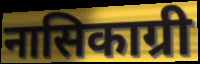
नासिकाग्री